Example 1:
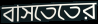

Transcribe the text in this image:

বাসতেতের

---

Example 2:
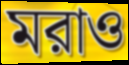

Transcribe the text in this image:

মরাও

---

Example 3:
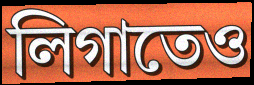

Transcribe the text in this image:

লিগাতেও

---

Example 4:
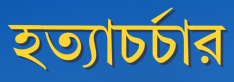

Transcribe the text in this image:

হত্যাচর্চার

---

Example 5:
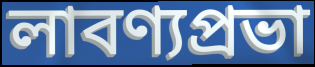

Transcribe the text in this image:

লাবণ্যপ্রভা